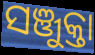
ସଞ୍ଜୁକ୍ତା